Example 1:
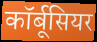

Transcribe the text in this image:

कॉर्बूसियर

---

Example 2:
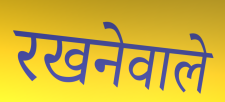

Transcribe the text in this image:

रखनेवाले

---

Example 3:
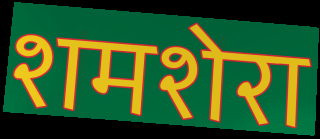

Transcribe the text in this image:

शमशेरा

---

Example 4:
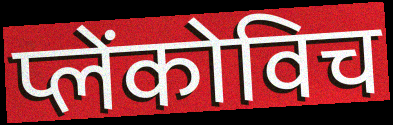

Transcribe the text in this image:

प्लेंकोविच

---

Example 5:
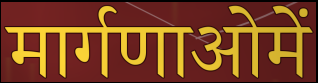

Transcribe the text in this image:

मार्गणाओमें